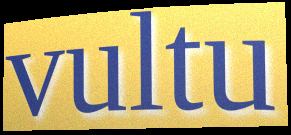
vultu